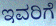
ಇವರಿಗೆ